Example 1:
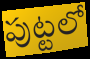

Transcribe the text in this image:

పుట్టలో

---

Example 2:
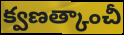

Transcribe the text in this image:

క్వణత్కాంచీ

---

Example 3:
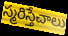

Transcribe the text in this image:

స్మరిస్తేచాలు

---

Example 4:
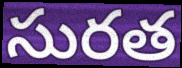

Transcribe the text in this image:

సురత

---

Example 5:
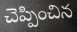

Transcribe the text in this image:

చెప్పించిన